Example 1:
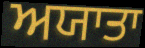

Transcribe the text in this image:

ਅਯਾਤਾ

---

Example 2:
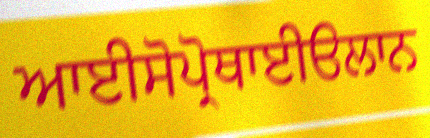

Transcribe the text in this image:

ਆਈਸੋਪ੍ਰੋਥਾਈੳਲਾਨ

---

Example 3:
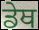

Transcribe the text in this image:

ਡੇਥ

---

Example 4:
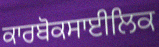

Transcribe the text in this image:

ਕਾਰਬੋਕਸਾਈਲਿਕ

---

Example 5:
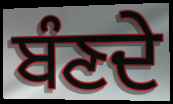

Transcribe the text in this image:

ਬੰਣਦੇ